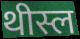
थीस्ल